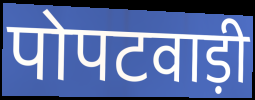
पोपटवाड़ी